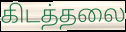
கிடத்தலை